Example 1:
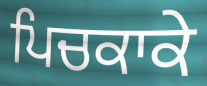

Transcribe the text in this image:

ਪਿਚਕਾਕੇ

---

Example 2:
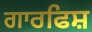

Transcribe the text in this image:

ਗਾਰਫਿਸ਼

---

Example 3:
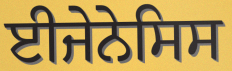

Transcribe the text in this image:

ਈਜੇਨੇਸਿਸ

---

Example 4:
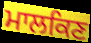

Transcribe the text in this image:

ਮਾਲਕਿਣ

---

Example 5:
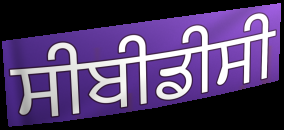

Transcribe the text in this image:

ਸੀਬੀਡੀਸੀ